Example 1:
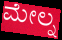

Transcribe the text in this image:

ಮೇಲ್ನ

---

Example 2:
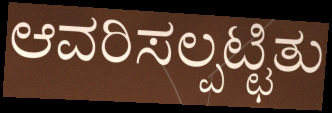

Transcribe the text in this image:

ಆವರಿಸಲ್ಪಟ್ಟಿತು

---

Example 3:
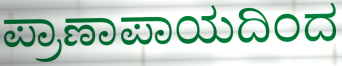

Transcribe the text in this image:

ಪ್ರಾಣಾಪಾಯದಿಂದ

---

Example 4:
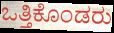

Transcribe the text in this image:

ಒತ್ತಿಕೊಂಡರು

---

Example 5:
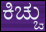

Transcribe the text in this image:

ಕಿಚ್ಚು